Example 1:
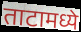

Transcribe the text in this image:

ताटामध्ये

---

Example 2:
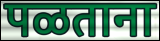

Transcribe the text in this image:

पळताना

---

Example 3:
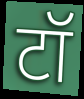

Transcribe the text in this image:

टॉ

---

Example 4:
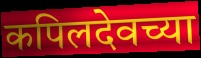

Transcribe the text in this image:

कपिलदेवच्या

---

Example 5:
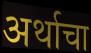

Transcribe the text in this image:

अर्थाचा